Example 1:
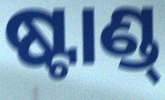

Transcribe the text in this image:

ଷ୍ଟାଣ୍ଡ୍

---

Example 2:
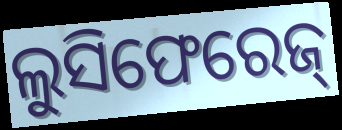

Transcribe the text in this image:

ଲୁସିଫେରେଜ୍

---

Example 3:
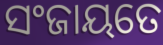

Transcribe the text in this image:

ସଂଜାୟତେ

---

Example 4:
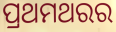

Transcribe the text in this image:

ପ୍ରଥମଥରର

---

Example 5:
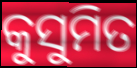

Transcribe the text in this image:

କୁସୁମିତ